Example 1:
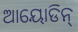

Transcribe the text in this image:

ଆୟୋଡିନ୍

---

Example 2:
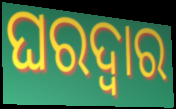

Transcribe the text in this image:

ଘରଦ୍ବାର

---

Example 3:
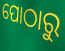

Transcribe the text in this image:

ପୋଠାରୁ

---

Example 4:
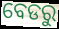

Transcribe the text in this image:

ବେଡରୁ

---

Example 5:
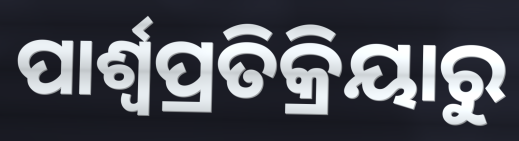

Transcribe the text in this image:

ପାର୍ଶ୍ୱପ୍ରତିକ୍ରିୟାରୁ